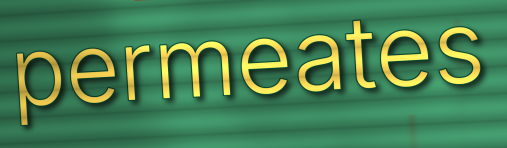
permeates